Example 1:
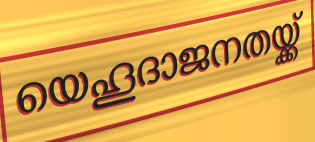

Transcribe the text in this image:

യെഹൂദാജനതയ്ക്ക്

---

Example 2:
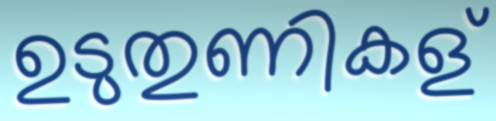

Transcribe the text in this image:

ഉടുതുണികള്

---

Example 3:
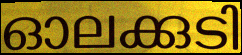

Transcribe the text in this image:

ഓലക്കുടി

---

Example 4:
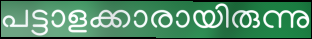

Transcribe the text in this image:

പട്ടാളക്കാരായിരുന്നു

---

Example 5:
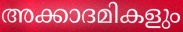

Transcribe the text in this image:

അക്കാദമികളും